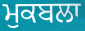
ਮੁਕਬਲਾ